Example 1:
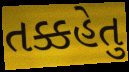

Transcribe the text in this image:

તક્કહેતુ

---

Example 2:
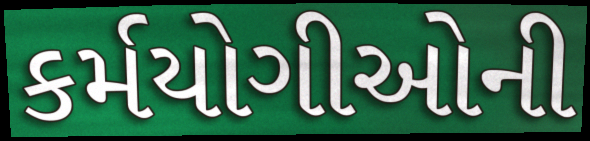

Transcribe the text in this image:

કર્મયોગીઓની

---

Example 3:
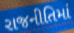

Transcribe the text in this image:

રાજનીતિમાં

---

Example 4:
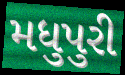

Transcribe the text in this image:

મધુપુરી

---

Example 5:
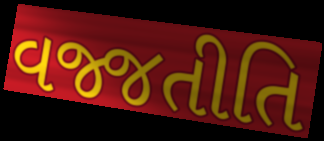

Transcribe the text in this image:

વજ્જતીતિ